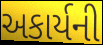
અકાર્યની